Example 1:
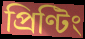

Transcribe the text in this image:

প্ৰিণ্টিং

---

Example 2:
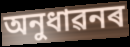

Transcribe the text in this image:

অনুধাৱনৰ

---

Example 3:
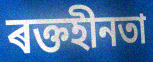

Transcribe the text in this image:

ৰক্তহীনতা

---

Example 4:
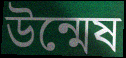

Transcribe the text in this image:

উন্মেষ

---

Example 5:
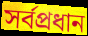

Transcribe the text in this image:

সৰ্বপ্ৰধান